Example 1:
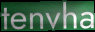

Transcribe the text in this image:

tenvha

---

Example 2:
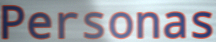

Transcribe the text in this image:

Personas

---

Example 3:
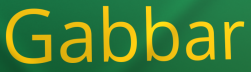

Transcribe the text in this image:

Gabbar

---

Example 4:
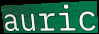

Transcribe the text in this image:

auric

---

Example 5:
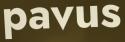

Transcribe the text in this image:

pavus